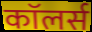
कॉलर्स